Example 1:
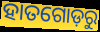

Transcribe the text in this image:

ହାତଗୋଡ଼ରୁ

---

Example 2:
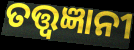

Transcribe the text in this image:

ତତ୍ତ୍ଵଜ୍ଞାନୀ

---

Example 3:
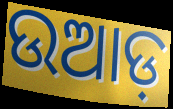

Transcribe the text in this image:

ଉଆଡ଼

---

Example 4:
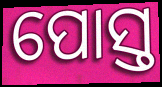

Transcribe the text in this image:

ପୋସ୍ତ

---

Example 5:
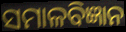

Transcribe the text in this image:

ସମାଳବିଜ୍ଞାନ